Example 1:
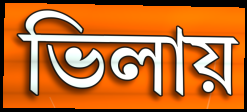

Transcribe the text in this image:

ভিলায়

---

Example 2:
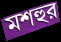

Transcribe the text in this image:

মশহুর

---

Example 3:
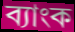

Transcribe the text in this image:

ব্যাংক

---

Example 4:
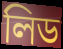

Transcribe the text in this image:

লিড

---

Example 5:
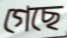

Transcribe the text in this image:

গেছে